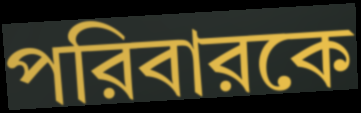
পরিবারকে